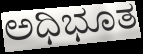
ಅಧಿಭೂತ